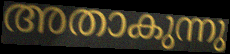
അതാകുന്നു